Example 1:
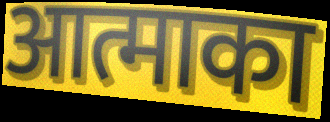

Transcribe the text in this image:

आत्माका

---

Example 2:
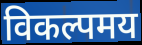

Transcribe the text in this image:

विकल्पमय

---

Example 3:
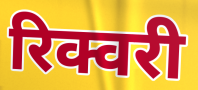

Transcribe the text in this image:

रिक्वरी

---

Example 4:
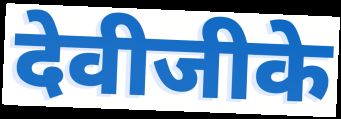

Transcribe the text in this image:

देवीजीके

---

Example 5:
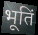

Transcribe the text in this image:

भूतिं